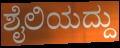
ಶೈಲಿಯದ್ದು